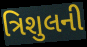
ત્રિશુલની